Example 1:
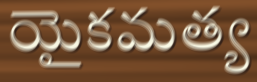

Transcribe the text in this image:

యైకమత్య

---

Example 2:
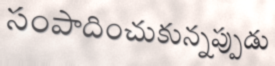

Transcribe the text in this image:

సంపాదించుకున్నప్పుడు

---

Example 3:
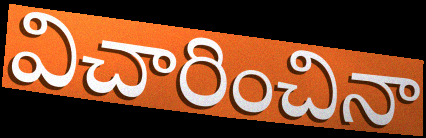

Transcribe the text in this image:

విచారించినా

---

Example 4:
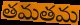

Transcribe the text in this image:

తమతమ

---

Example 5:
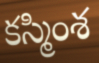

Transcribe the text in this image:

కస్మింశ